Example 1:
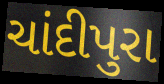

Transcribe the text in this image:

ચાંદીપુરા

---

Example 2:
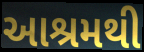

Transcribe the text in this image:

આશ્રમથી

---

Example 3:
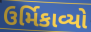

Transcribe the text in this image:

ઉર્મિકાવ્યો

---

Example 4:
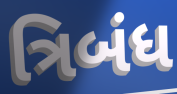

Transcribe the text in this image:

ત્રિબંધ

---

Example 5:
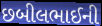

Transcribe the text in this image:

છબીલભાઈની